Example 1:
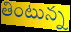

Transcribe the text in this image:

తింటున్న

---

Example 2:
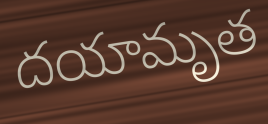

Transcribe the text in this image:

దయామృత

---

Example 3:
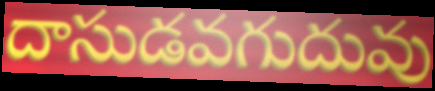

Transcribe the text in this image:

దాసుడవగుదువు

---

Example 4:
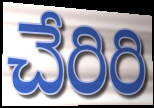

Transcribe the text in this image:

చేరిరి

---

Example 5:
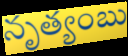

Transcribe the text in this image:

నృత్యంబు